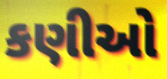
કણીઓ